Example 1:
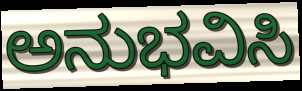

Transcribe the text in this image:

ಅನುಭವಿಸಿ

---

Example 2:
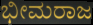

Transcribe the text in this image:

ಭೀಮರಾಜ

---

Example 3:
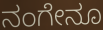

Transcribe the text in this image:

ನಂಗೇನೂ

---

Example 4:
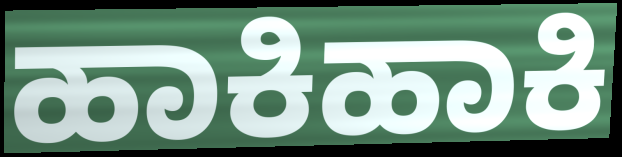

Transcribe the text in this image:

ಹಾಕಿಹಾಕಿ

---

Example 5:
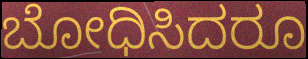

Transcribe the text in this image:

ಬೋಧಿಸಿದರೂ